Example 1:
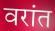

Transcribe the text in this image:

वरांत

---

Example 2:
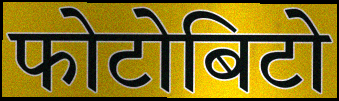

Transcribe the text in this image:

फोटोबिटो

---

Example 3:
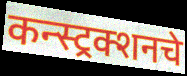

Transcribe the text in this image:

कन्स्ट्रक्शनचे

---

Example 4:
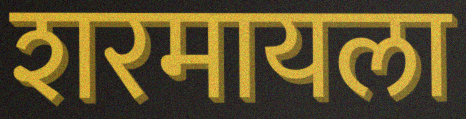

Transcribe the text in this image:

शरमायला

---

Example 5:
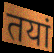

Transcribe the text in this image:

तयां